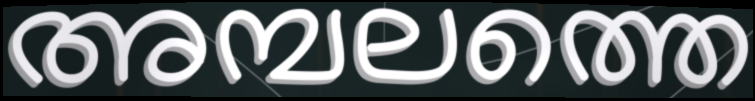
അമ്പലത്തെ